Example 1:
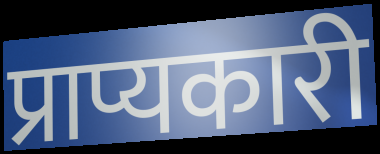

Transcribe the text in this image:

प्राप्यकारी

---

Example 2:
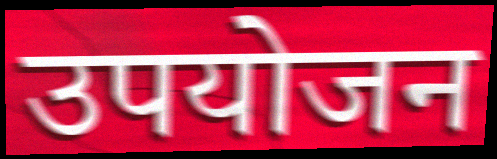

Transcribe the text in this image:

उपयोजन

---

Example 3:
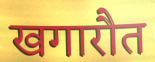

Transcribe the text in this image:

खगारौत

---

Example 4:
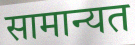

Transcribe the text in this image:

सामान्यत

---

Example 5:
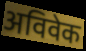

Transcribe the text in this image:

अविवेक